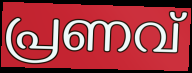
പ്രണവ്